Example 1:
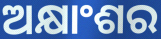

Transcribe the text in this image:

ଅକ୍ଷାଂଶର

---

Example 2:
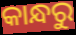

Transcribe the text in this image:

କାନ୍ଧରୁ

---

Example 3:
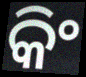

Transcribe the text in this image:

କିଂ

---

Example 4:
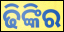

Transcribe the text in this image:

ଢିଙ୍କିର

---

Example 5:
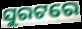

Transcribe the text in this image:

ସୁରଟରେ